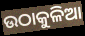
ଉଠାକୁଳିଆ